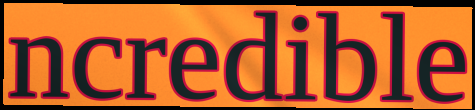
ncredible